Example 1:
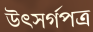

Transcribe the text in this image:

উৎসর্গপত্র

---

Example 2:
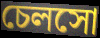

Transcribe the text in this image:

চেলসো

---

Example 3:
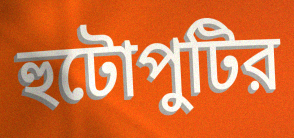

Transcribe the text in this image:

হুটোপুটির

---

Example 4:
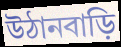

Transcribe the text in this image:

উঠানবাড়ি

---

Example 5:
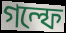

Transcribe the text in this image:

গল্ফে